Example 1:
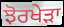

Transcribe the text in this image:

ਝੋਰਖੇੜਾ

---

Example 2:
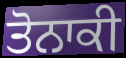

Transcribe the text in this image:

ਤੋਨਾਕੀ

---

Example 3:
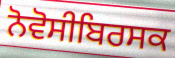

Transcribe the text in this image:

ਨੋਵੋਸੀਬਿਰਸਕ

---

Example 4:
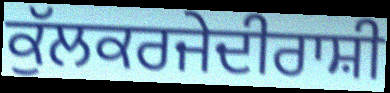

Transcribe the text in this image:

ਕੁੱਲਕਰਜੇਦੀਰਾਸ਼ੀ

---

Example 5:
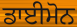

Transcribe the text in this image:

ਡਾਈਮੋਨ